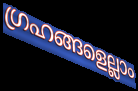
ഗ്രഹങ്ങളെല്ലാം